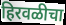
हिरवळीचा